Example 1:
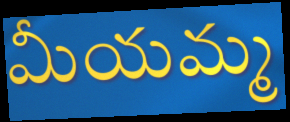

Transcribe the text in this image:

మీయమ్మ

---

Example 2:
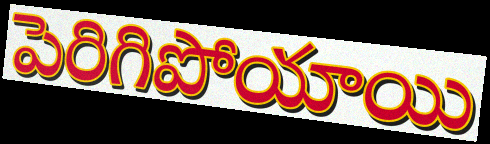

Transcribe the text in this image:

పెరిగిపోయాయి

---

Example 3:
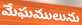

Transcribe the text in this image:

మేఘములును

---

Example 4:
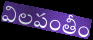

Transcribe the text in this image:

విలపంతీం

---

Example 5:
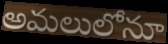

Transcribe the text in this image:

అమలులోనూ